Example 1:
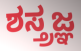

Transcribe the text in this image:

ಶಸ್ತ್ರಜ್ಞ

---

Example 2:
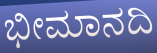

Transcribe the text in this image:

ಭೀಮಾನದಿ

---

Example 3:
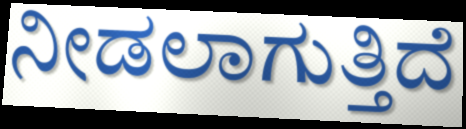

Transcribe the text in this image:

ನೀಡಲಾಗುತ್ತಿದೆ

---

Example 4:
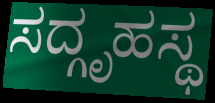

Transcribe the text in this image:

ಸದ್ಗೃಹಸ್ಥ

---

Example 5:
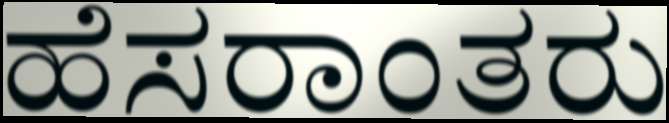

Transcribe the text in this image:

ಹೆಸರಾಂತರು